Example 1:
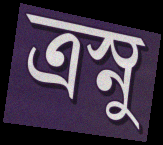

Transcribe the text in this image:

ত্রস্নু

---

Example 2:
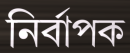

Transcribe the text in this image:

নির্বাপক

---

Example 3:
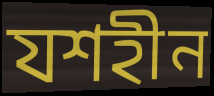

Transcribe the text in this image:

যশহীন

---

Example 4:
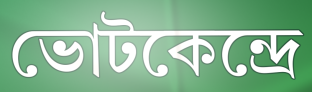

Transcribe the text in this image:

ভোটকেন্দ্রে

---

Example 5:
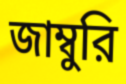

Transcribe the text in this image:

জাম্বুরি